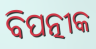
ବିପତ୍ନୀକ